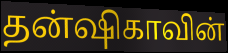
தன்ஷிகாவின்